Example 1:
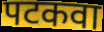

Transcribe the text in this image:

पटकवा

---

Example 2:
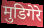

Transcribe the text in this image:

मुडिगेरे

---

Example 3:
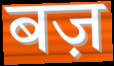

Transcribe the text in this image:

बज़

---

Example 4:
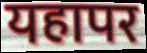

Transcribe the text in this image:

यहापर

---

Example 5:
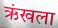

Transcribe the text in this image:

ऋंखला